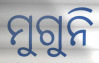
ମୁଗୁନି